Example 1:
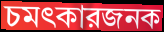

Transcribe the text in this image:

চমৎকারজনক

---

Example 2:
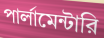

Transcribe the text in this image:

পার্লামেন্টারি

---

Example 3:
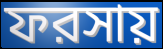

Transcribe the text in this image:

ফরসায়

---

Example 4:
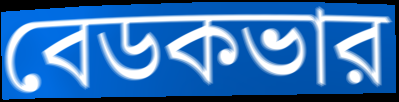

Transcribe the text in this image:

বেডকভার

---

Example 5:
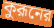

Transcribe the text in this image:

কুরূনের